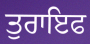
ਤੁਰਾਇਫ